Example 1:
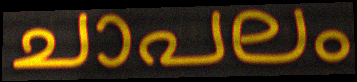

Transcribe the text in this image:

ചാപലം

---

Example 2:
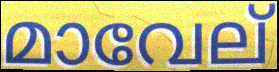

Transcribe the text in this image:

മാവേല്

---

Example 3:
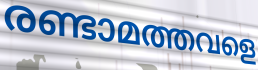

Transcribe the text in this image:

രണ്ടാമത്തവളെ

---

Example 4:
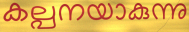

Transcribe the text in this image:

കല്പനയാകുന്നു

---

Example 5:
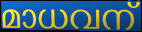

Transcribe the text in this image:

മാധവന്